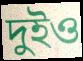
দুইও